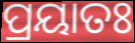
ପ୍ରୟାତଃ